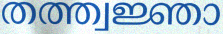
തത്ത്വജ്ഞാ